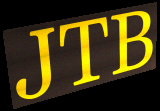
JTB